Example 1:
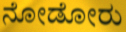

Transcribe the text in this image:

ನೋಡೋರು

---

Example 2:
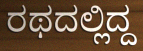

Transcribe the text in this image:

ರಥದಲ್ಲಿದ್ದ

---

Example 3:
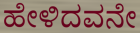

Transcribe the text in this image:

ಹೇಳಿದವನೇ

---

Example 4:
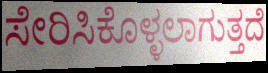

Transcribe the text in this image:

ಸೇರಿಸಿಕೊಳ್ಳಲಾಗುತ್ತದೆ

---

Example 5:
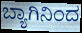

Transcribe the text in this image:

ಬ್ಯಾಗಿನಿಂದ